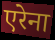
एरेना